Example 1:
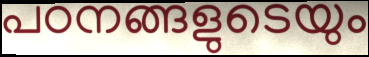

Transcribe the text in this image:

പഠനങ്ങളുടെയും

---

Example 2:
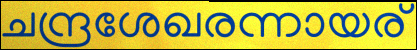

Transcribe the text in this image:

ചന്ദ്രശേഖരന്നായര്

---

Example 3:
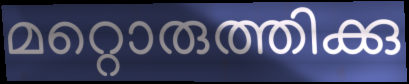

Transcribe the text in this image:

മറ്റൊരുത്തിക്കു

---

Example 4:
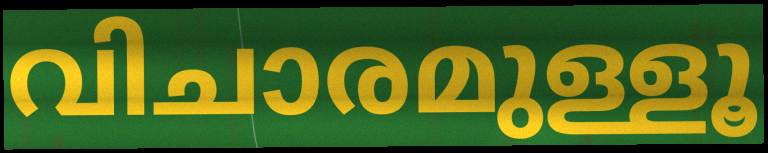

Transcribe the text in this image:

വിചാരമുള്ളൂ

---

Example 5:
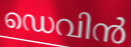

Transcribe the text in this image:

ഡെവിൻ